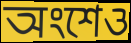
অংশেও